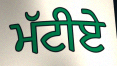
ਮੱਟੀਏ